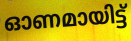
ഓണമായിട്ട്